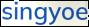
singyoe